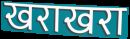
खराखरा